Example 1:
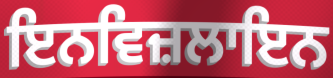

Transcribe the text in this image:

ਇਨਵਿਜ਼ਲਾਇਨ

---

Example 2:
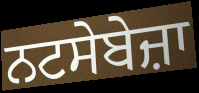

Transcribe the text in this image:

ਨਟਸੇਬੇਜ਼ਾ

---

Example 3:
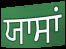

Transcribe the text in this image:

ਯਾਸਾਂ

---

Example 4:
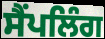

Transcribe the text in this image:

ਸੈਂਪਲਿੰਗ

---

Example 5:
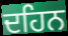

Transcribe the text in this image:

ਦਹਿਨ